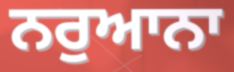
ਨਰੁਆਨਾ